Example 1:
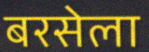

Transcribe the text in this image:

बरसेला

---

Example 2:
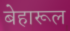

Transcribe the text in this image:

बेहारूल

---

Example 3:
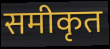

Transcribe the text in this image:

समीकृत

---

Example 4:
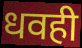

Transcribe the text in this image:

धवही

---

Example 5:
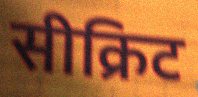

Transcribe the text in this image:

सीक्रिट